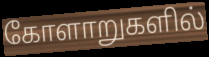
கோளாறுகளில்